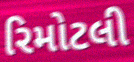
રિમોટલી